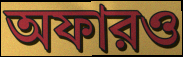
অফারও